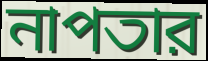
নাপতার